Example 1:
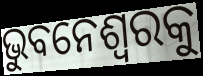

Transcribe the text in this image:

ଭୁବନେଶ୍ୱରକୁ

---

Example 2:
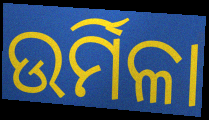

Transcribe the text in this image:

ଉର୍ମିଳା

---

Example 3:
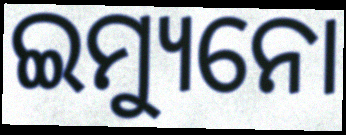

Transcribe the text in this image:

ଇମ୍ୟୁନୋ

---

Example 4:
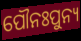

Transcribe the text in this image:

ପୌନଃପୁନ୍ୟ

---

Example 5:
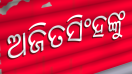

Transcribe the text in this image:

ଅଜିତସିଂହଙ୍କୁ